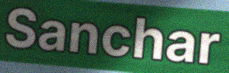
Sanchar